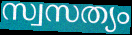
സ്വസത്യം